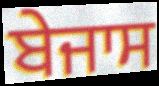
ਬੇਜਾਸ